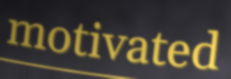
motivated